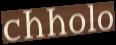
chholo